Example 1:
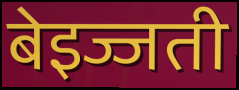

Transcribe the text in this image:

बेइज्जती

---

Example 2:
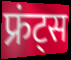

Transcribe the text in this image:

फ्रंट्स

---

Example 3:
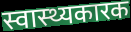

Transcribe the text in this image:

स्वास्थ्यकारक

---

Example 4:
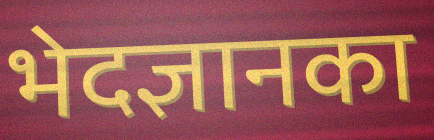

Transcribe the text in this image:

भेदज्ञानका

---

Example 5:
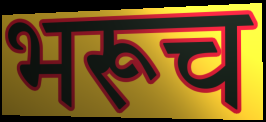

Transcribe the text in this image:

भरूच